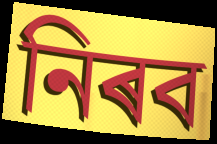
নিৰব